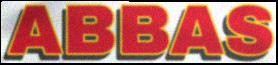
ABBAS